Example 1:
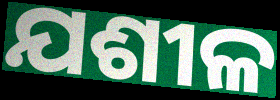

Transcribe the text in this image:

ଯଶୀଳ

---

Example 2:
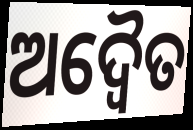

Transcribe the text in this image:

ଅଦ୍ୱୈତ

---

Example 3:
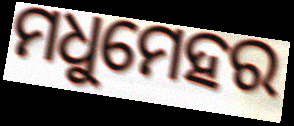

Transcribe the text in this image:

ମଧୁମେହର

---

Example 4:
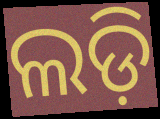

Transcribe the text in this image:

ଲଡ଼ି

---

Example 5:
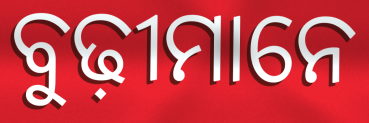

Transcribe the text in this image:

ବୁଢ଼ୀମାନେ